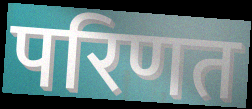
परिणत